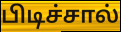
பிடிச்சால்